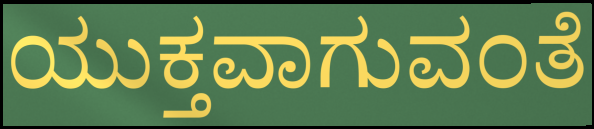
ಯುಕ್ತವಾಗುವಂತೆ